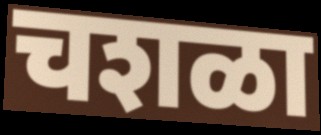
चशळा